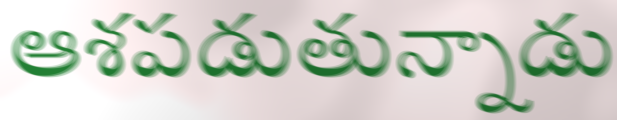
ఆశపడుతున్నాడు